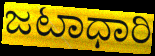
ಜಟಾಧಾರಿ